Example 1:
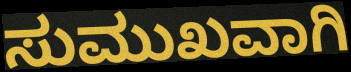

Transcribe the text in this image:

ಸುಮುಖವಾಗಿ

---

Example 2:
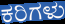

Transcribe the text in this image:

ಕರಿಗಳು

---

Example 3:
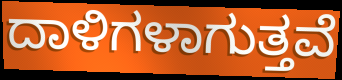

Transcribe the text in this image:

ದಾಳಿಗಳಾಗುತ್ತವೆ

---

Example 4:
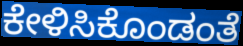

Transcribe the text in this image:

ಕೇಳಿಸಿಕೊಂಡಂತೆ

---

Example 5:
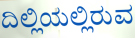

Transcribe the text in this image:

ದಿಲ್ಲಿಯಲ್ಲಿರುವ